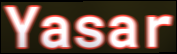
Yasar